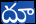
దూ